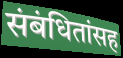
संबंधितांसह